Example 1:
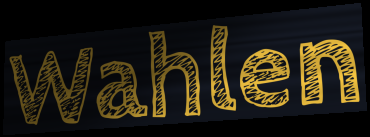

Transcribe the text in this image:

Wahlen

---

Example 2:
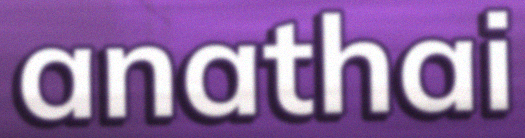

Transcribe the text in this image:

anathai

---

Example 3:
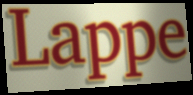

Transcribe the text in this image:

Lappe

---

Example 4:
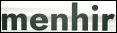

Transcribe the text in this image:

menhir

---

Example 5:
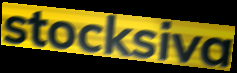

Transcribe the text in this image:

stocksiva